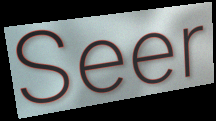
Seer